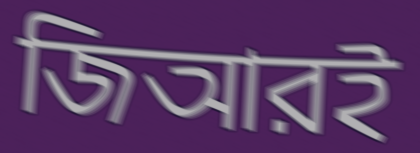
জিআরই